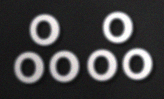
ஃஃ